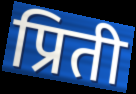
प्रिती